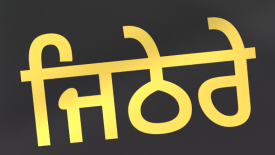
ਜਿਠੇਰੇ